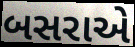
બસરાએ